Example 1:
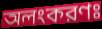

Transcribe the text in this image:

অলংকরণঃ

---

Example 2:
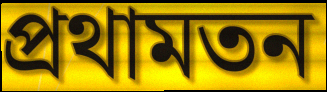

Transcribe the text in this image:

প্রথামতন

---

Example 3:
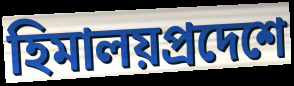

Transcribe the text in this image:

হিমালয়প্রদেশে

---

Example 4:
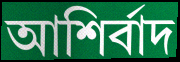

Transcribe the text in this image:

আশির্বাদ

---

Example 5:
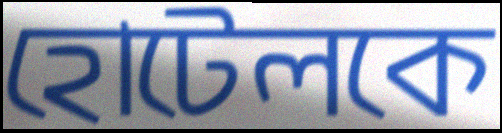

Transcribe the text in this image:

হোটেলকে